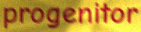
progenitor